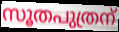
സൂതപുത്രന്